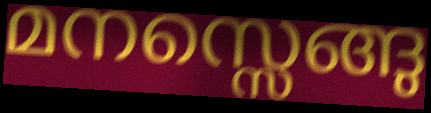
മനസ്സെങ്ങു